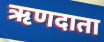
ऋणदाता